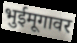
भुईमूगावर